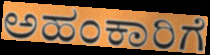
ಅಹಂಕಾರಿಗೆ